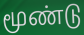
மூண்டு